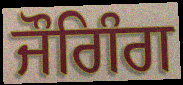
ਜੌਗਿੰਗ